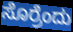
ಸೊರ್ರೆಂದು